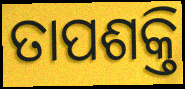
ତାପଶକ୍ତି